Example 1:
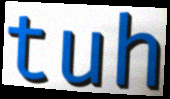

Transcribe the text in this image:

tuh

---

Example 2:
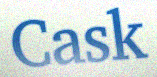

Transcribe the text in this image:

Cask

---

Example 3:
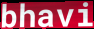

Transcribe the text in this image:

bhavi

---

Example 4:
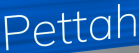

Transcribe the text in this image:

Pettah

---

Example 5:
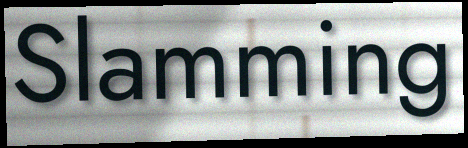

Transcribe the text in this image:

Slamming